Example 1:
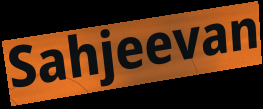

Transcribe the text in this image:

Sahjeevan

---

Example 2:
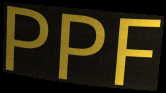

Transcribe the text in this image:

PPF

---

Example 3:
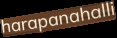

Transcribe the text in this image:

harapanahalli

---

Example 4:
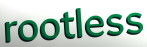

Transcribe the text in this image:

rootless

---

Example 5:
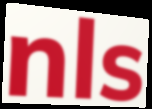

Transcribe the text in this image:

nls